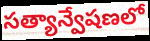
సత్యాన్వేషణలో